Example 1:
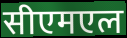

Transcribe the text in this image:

सीएमएल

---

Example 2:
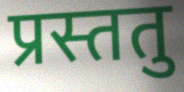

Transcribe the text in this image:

प्रस्ततु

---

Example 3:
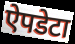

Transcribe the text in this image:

ऐपडेटा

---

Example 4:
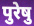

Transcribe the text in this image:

पुरेषु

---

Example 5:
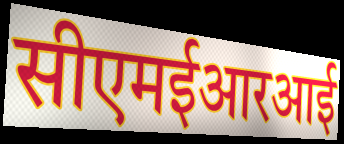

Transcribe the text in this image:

सीएमईआरआई